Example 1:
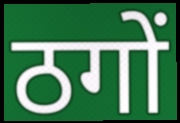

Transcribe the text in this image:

ठगों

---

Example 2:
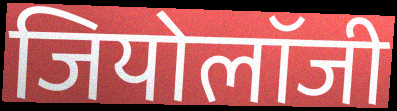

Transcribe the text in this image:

जियोलॉजी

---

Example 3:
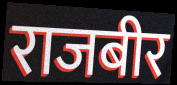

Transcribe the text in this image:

राजबीर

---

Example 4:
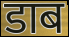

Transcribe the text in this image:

डाब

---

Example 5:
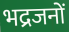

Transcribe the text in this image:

भद्रजनों